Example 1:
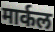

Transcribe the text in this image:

मार्कल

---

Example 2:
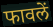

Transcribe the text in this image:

फावलें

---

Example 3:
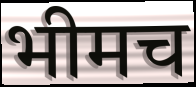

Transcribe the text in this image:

भीमच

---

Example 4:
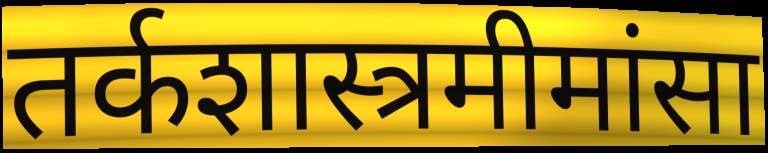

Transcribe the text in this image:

तर्कशास्त्रमीमांसा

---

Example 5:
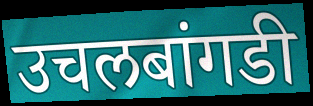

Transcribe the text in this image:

उचलबांगडी